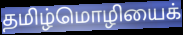
தமிழ்மொழியைக்